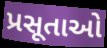
પ્રસૂતાઓ